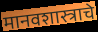
मानवशास्त्राचे